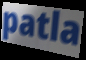
patla